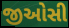
જીઓસી